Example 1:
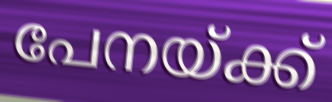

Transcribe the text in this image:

പേനയ്ക്ക്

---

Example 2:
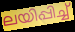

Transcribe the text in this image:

ലയിപ്പിച്ച്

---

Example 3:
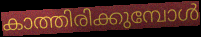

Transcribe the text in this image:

കാത്തിരിക്കുമ്പോൾ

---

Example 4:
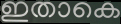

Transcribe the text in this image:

ഇതാകെ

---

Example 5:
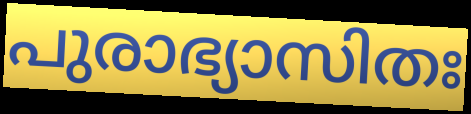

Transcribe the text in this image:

പുരാഭ്യാസിതഃ